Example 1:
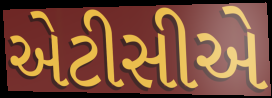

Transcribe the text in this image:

એટીસીએ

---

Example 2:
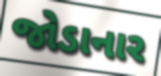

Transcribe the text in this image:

જોડાનાર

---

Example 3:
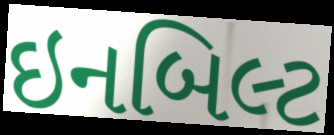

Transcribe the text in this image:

ઇનબિલ્ટ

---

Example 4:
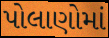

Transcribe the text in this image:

પોલાણોમાં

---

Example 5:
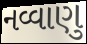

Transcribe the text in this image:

નવ્વાણુ